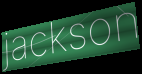
jackson